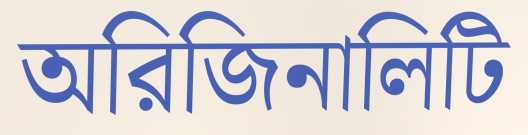
অরিজিনালিটি